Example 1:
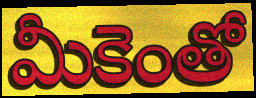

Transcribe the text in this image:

మీకెంతో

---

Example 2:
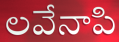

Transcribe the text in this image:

లవేనాపి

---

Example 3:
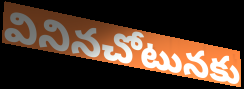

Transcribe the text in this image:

వినినచోటునకు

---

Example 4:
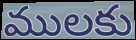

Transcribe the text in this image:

ములకు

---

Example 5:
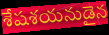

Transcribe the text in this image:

శేషశయనుడైన